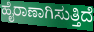
ಹೈರಾಣಾಗಿಸುತ್ತಿದೆ